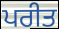
ਪਰੀਤ